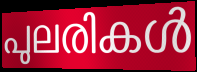
പുലരികൾ